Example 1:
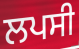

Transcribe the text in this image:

ਲਪਸੀ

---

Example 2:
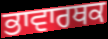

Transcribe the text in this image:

ਭਾਵਾਰਥਕ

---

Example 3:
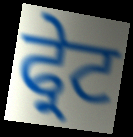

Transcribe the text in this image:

ਫ੍ਰੇਟ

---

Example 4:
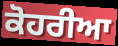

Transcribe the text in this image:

ਕੋਹਰੀਆ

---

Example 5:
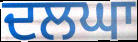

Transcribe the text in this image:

ਦਲਘਾ